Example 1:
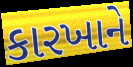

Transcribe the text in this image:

કારખાને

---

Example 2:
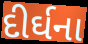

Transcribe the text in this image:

દીર્ઘના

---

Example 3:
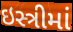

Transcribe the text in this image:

ઇસ્ત્રીમાં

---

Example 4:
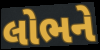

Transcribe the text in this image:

લોભને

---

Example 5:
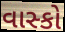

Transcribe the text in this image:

વાસ્કો